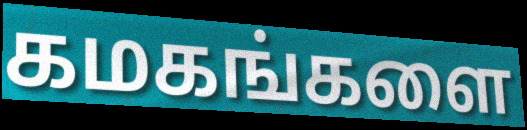
கமகங்களை